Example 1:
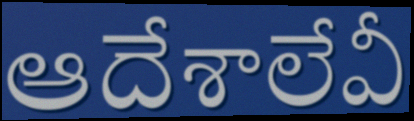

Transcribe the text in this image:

ఆదేశాలేవీ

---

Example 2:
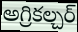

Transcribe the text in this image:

అగ్రికల్చర్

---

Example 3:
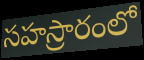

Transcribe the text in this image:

సహస్రారంలో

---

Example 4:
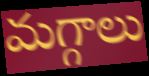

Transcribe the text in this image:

మగ్గాలు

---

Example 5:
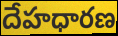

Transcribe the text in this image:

దేహధారణ